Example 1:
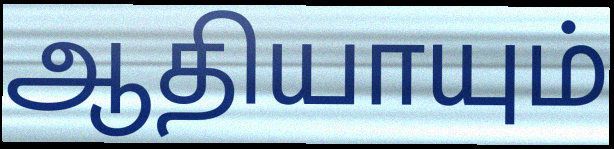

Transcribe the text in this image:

ஆதியாயும்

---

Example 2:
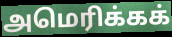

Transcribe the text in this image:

அமெரிக்கக்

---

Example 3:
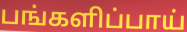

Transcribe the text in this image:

பங்களிப்பாய்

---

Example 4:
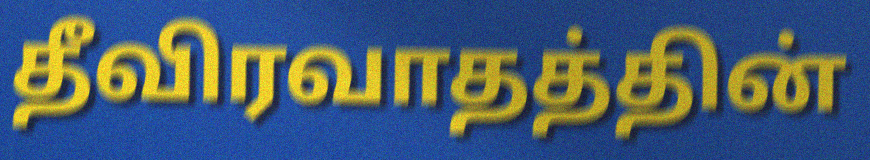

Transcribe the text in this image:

தீவிரவாதத்தின்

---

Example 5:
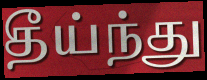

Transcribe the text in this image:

தீய்ந்து